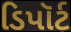
ડિપૉર્ટ